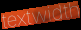
textwidth